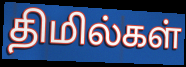
திமில்கள்